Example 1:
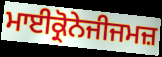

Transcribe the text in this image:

ਮਾਈਕ੍ਰੋਨੇਜੀਜਮਜ਼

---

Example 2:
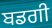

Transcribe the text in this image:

ਬਡਗੀ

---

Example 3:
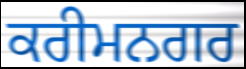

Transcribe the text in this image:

ਕਰੀਮਨਗਰ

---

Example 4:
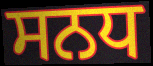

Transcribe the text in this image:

ਸਨਧ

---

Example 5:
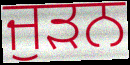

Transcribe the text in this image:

ਜੁਡ਼ਨ